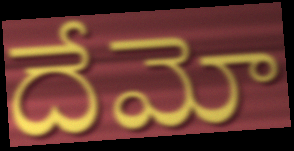
దేమో